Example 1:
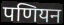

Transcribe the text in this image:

पणियन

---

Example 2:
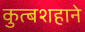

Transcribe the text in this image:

कुत्बशहाने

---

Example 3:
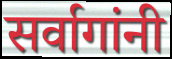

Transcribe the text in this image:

सर्वागांनी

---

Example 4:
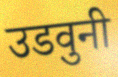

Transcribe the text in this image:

उडवुनी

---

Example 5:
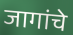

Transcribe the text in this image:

जागांचे